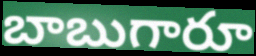
బాబుగారూ